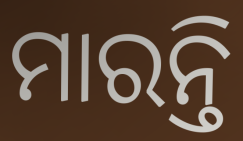
ମାରନ୍ତି